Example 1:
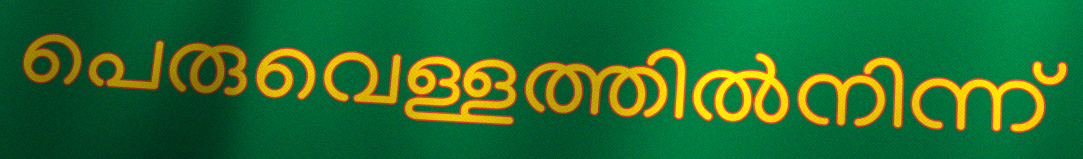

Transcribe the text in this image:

പെരുവെള്ളത്തിൽനിന്ന്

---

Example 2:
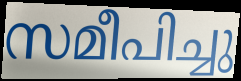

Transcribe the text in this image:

സമീപിച്ചു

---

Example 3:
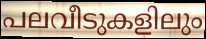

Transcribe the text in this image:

പലവീടുകളിലും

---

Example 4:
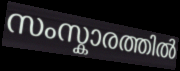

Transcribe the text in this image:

സംസ്കാരത്തിൽ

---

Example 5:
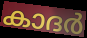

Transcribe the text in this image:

കാദർ